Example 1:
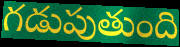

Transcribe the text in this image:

గడుపుతుంది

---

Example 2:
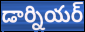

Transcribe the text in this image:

డార్నియర్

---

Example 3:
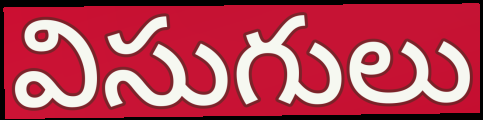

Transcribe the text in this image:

విసుగులు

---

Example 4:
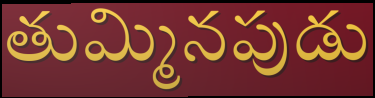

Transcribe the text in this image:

తుమ్మినపుడు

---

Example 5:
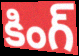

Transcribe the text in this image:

కింగ్